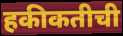
हकीकतीची